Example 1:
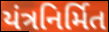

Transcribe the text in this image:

યંત્રનિર્મિત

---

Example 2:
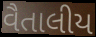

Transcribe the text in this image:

વૈતાલીય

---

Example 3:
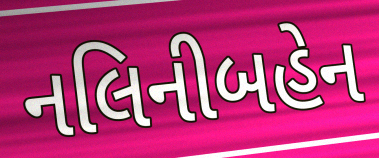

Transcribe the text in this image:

નલિનીબહેન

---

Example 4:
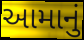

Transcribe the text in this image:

આમાનું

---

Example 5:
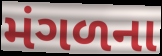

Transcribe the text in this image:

મંગળના